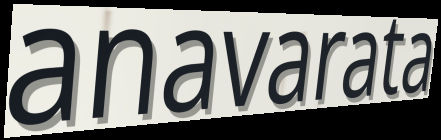
anavarata